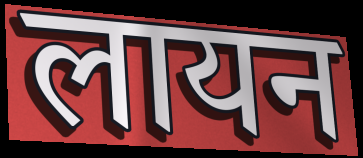
लायन